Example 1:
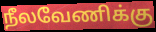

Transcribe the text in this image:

நீலவேணிக்கு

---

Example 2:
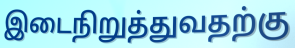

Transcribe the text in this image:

இடைநிறுத்துவதற்கு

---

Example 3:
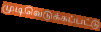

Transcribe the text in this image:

முடிவெடுக்கப்பட்டு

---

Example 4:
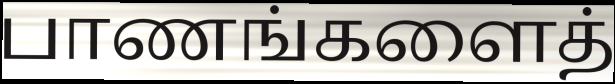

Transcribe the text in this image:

பாணங்களைத்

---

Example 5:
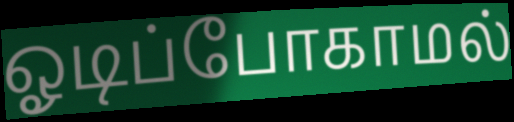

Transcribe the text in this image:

ஓடிப்போகாமல்